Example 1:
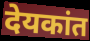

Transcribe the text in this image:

देयकांत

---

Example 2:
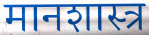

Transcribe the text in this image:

मानशास्त्र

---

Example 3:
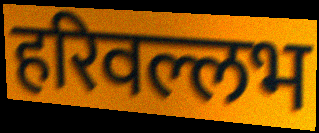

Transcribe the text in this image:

हरिवल्लभ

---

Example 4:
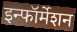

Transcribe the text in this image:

इन्फॉर्मेशन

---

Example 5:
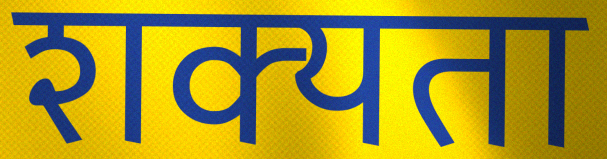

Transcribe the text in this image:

शक्‍यता